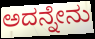
ಅದನ್ನೇನು